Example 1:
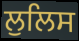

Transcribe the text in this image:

ਲੁਲਿਸ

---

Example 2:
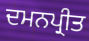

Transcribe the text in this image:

ਦਮਨਪ੍ਰੀਤ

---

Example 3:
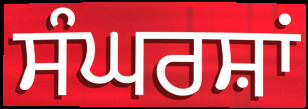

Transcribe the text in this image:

ਸੰਘਰਸ਼ਾਂ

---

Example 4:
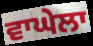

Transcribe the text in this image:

ਵਾਘੇਲਾ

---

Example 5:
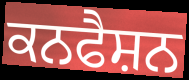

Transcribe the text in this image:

ਕਨਫੈਸ਼ਨ